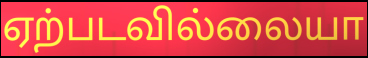
ஏற்படவில்லையா